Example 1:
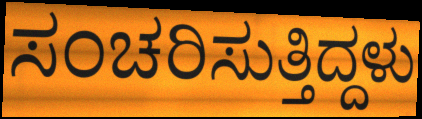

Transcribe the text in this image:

ಸಂಚರಿಸುತ್ತಿದ್ದಳು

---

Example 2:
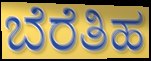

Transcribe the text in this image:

ಬೆರೆತಿಹ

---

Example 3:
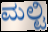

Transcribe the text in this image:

ಮಲ್ಟಿ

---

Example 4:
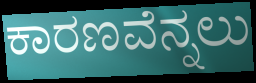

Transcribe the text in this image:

ಕಾರಣವೆನ್ನಲು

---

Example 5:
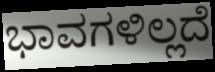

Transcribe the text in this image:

ಭಾವಗಳಿಲ್ಲದೆ